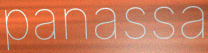
panassa